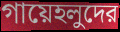
গায়েহলুদের